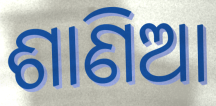
ଶାଣିଆ